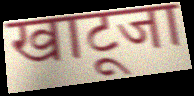
खाटूजा